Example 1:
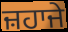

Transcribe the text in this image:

ਜ਼ਹਾਜੇ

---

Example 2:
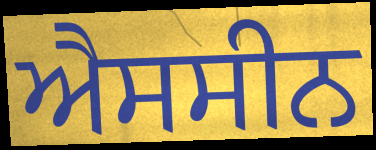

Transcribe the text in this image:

ਐਸਸੀਨ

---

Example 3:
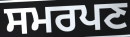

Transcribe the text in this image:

ਸਮਰਪਣ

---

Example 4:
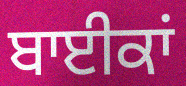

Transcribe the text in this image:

ਬਾਈਕਾਂ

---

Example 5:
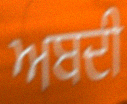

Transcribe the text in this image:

ਅਬਦੀ